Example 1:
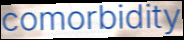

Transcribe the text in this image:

comorbidity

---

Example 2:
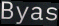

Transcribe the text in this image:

Byas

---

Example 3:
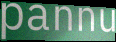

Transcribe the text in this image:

pannu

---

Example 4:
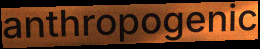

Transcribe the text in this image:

anthropogenic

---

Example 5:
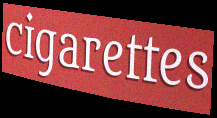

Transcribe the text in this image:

cigarettes